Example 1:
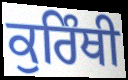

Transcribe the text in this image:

ਕੁਰਿੰਥੀ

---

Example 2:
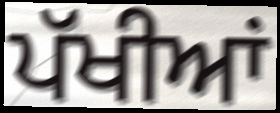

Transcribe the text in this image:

ਪੱਖੀਆਂ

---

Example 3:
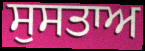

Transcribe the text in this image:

ਸੁਸਤਾਅ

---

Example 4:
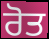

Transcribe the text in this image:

ਰੋਤ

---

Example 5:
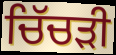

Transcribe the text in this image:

ਚਿੱਚੜੀ